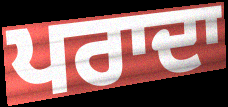
ਪਰਾਦਾ